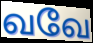
வவே